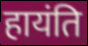
हायंति